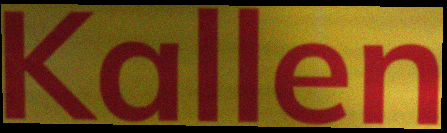
Kallen